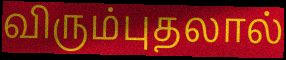
விரும்புதலால்